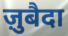
ज़ुबैदा